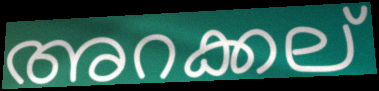
അറക്കല്